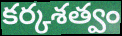
కర్కశత్వం